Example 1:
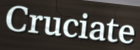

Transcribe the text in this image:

Cruciate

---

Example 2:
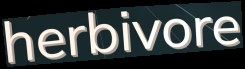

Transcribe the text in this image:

herbivore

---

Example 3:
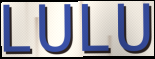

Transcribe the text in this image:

LULU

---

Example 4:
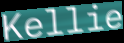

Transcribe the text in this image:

Kellie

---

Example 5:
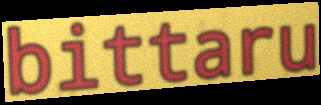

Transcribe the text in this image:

bittaru